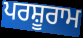
ਪਰਸ਼ੂਰਾਮ